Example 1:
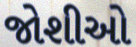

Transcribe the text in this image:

જોશીઓ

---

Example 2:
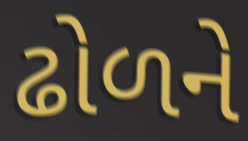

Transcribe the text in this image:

ઢોળને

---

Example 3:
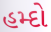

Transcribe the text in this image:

હમ્દો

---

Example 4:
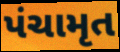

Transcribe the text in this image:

પંચામૃત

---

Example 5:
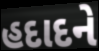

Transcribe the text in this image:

હદાદને